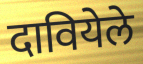
दावियेले